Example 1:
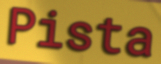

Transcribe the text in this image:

Pista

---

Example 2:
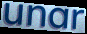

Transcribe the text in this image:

unar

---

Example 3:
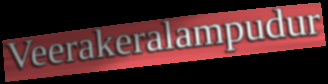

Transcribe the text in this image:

Veerakeralampudur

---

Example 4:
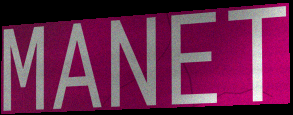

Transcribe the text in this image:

MANET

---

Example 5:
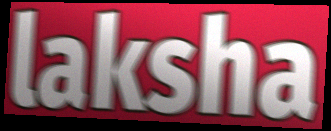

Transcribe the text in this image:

laksha